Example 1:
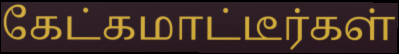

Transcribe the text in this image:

கேட்கமாட்டீர்கள்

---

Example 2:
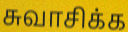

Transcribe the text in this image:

சுவாசிக்க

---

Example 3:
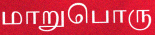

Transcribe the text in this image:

மாறுபொரு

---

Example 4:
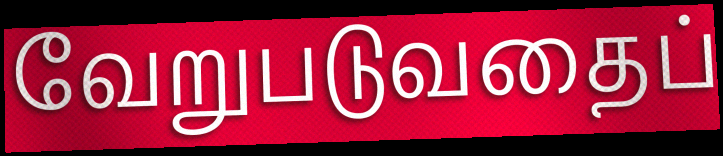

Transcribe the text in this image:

வேறுபடுவதைப்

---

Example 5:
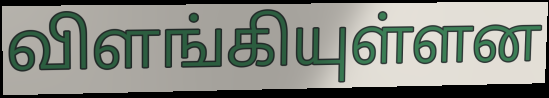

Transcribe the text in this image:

விளங்கியுள்ளன